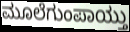
ಮೂಲೆಗುಂಪಾಯ್ತು